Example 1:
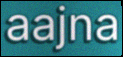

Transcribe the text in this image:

aajna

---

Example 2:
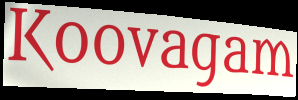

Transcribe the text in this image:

Koovagam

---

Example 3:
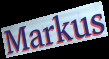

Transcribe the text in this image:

Markus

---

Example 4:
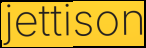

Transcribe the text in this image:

jettison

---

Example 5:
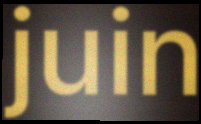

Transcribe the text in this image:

juin